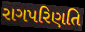
રાગપરિણતિ